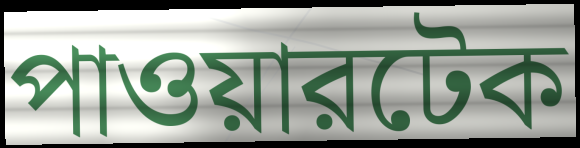
পাওয়ারটেক